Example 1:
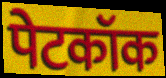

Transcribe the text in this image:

पेटकॉक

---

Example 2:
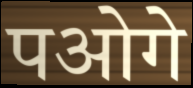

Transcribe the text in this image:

पओगे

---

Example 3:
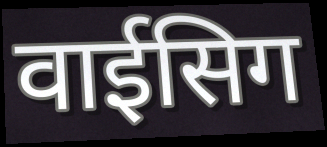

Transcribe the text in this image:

वाईसिग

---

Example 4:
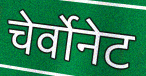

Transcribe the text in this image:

चेर्वोनेट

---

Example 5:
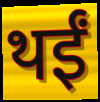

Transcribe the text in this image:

थईं